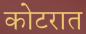
कोटरात